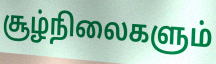
சூழ்நிலைகளும்